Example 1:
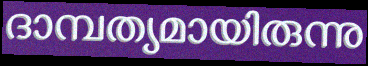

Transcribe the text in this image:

ദാമ്പത്യമായിരുന്നു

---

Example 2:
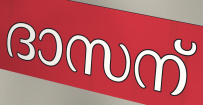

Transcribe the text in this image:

ദാസന്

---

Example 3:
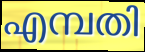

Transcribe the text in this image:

എമ്പതി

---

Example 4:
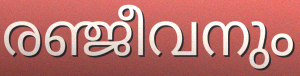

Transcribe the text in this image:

രഞ്ജീവനും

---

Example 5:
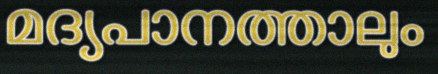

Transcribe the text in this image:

മദ്യപാനത്താലും